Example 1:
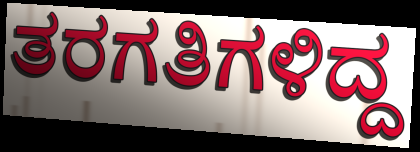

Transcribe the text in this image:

ತರಗತಿಗಳಿದ್ದ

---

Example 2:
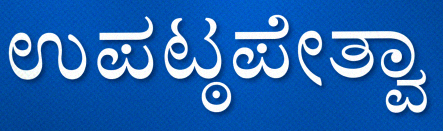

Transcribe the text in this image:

ಉಪಟ್ಠಪೇತ್ವಾ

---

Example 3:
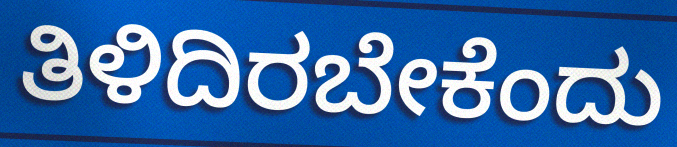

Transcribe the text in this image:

ತಿಳಿದಿರಬೇಕೆಂದು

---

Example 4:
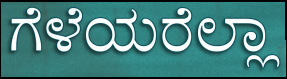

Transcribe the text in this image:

ಗೆಳೆಯರೆಲ್ಲಾ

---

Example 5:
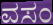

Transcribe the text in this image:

ವಸಂ